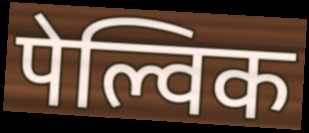
पेल्विक